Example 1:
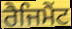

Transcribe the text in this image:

ਰੈਜਿਮੈਂਟ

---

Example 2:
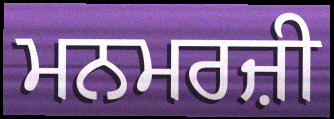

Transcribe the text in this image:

ਮਨਮਰਜ਼ੀ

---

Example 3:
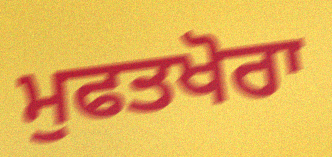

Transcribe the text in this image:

ਮੁਫਤਖੋਰਾ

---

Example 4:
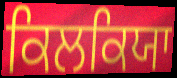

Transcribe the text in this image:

ਕਿਲਕਿਯਾ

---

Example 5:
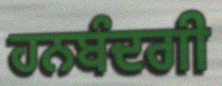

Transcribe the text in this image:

ਹਨਬੰਦਗੀ